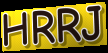
HRRJ